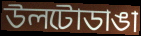
উলটোডাঙা